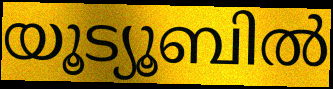
യൂട്യൂബിൽ